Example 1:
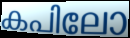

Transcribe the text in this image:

കപിലോ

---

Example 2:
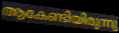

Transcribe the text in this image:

ആകേണ്ടിയിരുന്നു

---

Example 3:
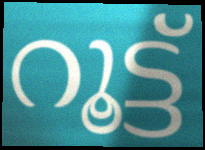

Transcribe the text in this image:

റൂട്ട്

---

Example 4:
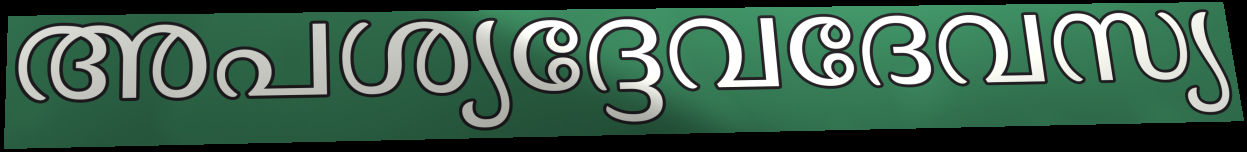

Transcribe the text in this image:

അപശ്യദ്ദേവദേവസ്യ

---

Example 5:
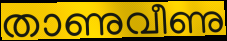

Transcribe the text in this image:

താണുവീണു